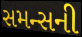
સમન્સની